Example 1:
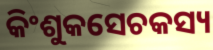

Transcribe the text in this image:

କିଂଶୁକସେଚକସ୍ୟ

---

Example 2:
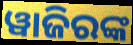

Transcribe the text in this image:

ୱାଜିରଙ୍କ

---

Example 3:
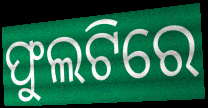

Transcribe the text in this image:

ଫୁଲଟିରେ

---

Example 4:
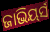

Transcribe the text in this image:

ଜାଭିୟର୍ସ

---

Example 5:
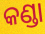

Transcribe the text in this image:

କଣ୍ଡା